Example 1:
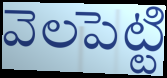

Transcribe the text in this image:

వెలపెట్టి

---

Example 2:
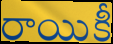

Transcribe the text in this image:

రాయికీ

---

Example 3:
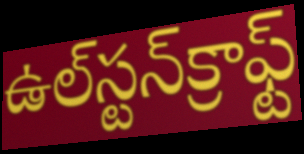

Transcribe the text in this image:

ఉల్‌స్టన్‌క్రాఫ్ట్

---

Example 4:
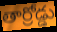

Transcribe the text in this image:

తార్రోడ్డు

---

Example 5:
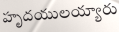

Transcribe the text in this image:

హృదయులయ్యారు